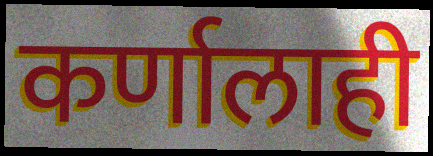
कर्णालाही